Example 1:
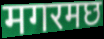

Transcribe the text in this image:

मगरमछ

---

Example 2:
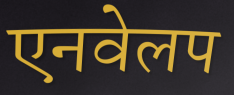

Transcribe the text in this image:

एनवेलप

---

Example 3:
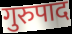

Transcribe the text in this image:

गुरुपाद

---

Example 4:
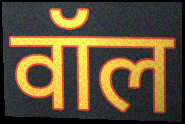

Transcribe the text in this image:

वॉल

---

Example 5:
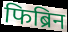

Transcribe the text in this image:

फिब्रिन